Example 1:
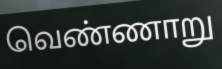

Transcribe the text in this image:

வெண்ணாறு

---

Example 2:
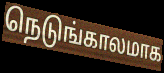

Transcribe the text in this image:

நெடுங்காலமாக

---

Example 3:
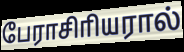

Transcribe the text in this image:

பேராசிரியரால்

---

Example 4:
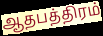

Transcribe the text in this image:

ஆதபத்திரம்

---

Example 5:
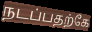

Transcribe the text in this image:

நடப்பதற்கே